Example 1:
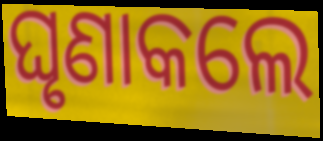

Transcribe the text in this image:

ଘୃଣାକଲେ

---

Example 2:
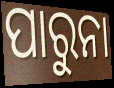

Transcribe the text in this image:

ପାରୁନା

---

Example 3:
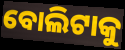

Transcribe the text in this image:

ବୋଲିଟାକୁ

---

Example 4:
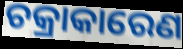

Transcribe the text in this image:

ଚକ୍ରାକାରେଣ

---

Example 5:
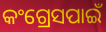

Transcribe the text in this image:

କଂଗ୍ରେସପାଇଁ